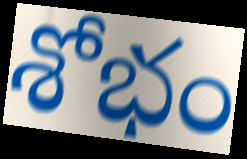
శోభం